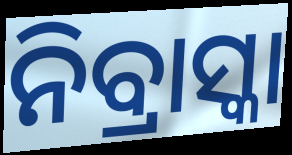
ନିବ୍ରାସ୍କା